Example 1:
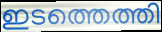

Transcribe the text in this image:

ഇടത്തെത്തി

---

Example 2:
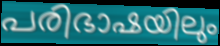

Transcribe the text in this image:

പരിഭാഷയിലും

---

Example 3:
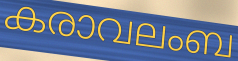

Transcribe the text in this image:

കരാവലംബ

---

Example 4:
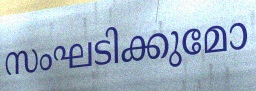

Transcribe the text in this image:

സംഘടിക്കുമോ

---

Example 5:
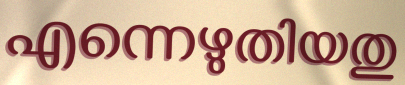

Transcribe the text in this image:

എന്നെഴുതിയതു